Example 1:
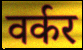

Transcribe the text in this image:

वर्कर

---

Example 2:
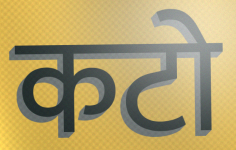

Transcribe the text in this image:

कटो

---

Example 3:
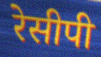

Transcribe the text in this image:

रेसीपी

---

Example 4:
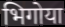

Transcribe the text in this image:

भिगोया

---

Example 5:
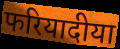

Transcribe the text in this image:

फरियादीया